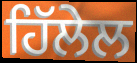
ਹਿੱਲੇਲ